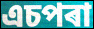
এচপৰা